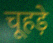
चूहड़े